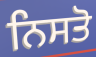
ਨਿਸਤੋ